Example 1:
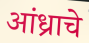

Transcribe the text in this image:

आंध्राचे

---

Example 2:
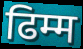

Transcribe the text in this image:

ढिम्म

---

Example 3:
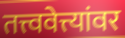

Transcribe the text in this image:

तत्त्ववेत्त्यांवर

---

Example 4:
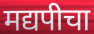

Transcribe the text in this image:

मद्यपीचा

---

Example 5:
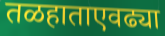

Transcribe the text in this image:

तळहाताएवढ्या